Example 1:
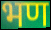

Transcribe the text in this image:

भण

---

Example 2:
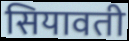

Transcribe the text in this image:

सियावती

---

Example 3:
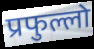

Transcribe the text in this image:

प्रफुल्लो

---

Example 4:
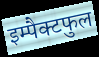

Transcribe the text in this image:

इम्पैक्टफुल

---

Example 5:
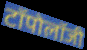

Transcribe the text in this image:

टॉपोलॉजी